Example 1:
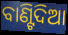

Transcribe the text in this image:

ବାଣ୍ଟିଦିଆ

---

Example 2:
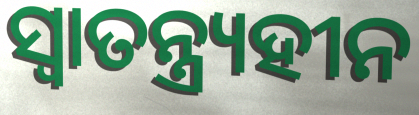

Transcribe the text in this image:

ସ୍ଵାତନ୍ତ୍ର୍ୟହୀନ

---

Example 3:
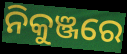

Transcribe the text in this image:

ନିକୁଞ୍ଜରେ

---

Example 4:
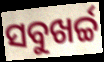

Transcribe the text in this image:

ସବୁଖର୍ଚ୍ଚ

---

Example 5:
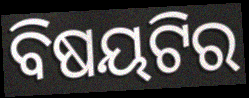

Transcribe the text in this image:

ବିଷୟଟିର